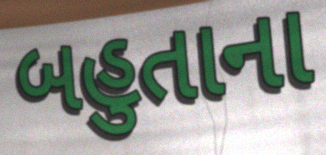
બહુતાના